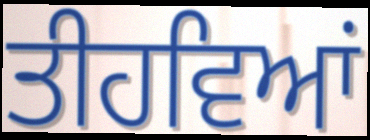
ਤੀਹਵਿਆਂ